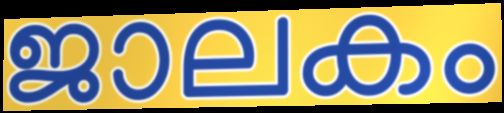
ജാലകം